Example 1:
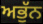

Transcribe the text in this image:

ਅਭੁੱਨ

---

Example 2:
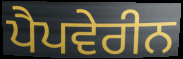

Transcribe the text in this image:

ਪੈਪਵੇਰੀਨ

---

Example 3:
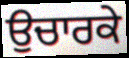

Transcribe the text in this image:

ਉਚਾਰਕੇ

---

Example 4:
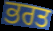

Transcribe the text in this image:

ਭਰਤ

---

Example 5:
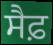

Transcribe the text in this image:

ਸੈਫ਼